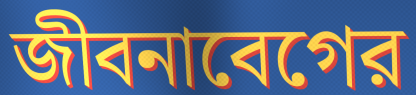
জীবনাবেগের